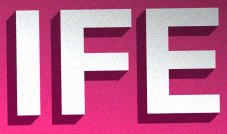
IFE